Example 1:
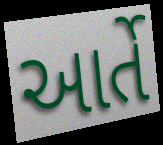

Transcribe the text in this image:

આર્તે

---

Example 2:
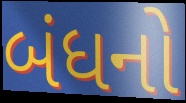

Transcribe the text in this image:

બંધનો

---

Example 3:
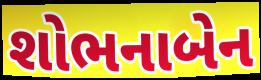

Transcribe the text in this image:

શોભનાબેન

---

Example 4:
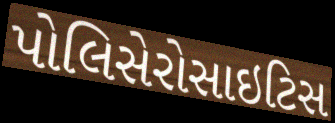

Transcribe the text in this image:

પોલિસેરોસાઇટિસ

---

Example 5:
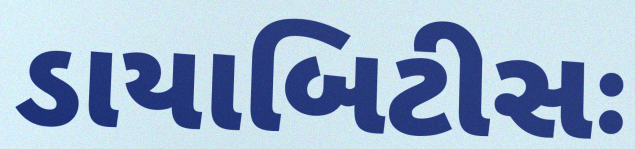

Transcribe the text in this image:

ડાયાબિટીસઃ